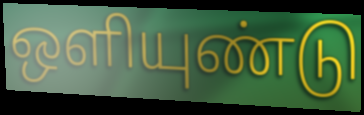
ஒளியுண்டு